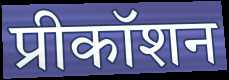
प्रीकॉशन